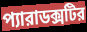
প্যারাডক্সটির